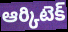
ఆర్కిటెక్